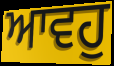
ਆਵਹੁ